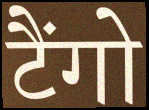
टैंगो